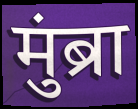
मुंब्रा